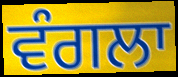
ਵੰਗਲਾ